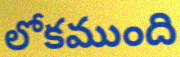
లోకముంది